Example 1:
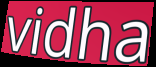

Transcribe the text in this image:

vidha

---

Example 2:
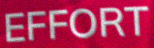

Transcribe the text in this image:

EFFORT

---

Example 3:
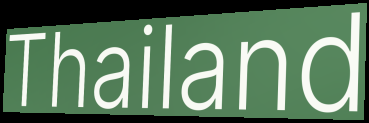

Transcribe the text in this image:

Thailand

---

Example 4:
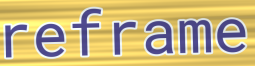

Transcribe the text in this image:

reframe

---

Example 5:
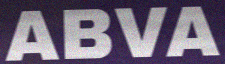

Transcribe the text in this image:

ABVA